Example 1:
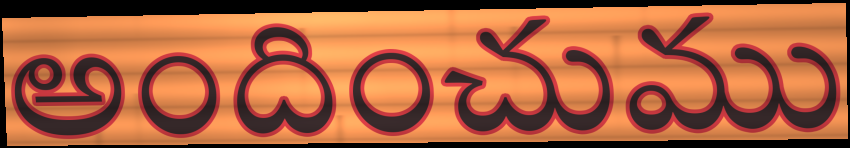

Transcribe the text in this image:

అందించుము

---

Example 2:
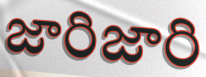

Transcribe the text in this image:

జారిజారి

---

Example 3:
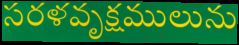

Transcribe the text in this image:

సరళవృక్షములును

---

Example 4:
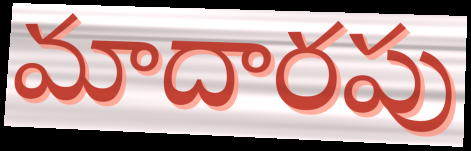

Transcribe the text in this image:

మాదారపు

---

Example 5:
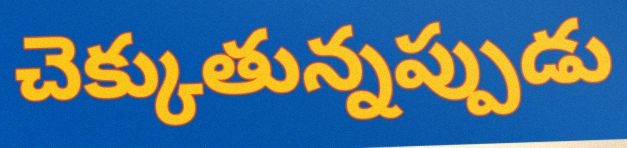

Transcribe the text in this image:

చెక్కుతున్నప్పుడు